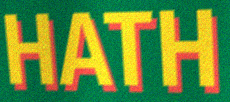
HATH